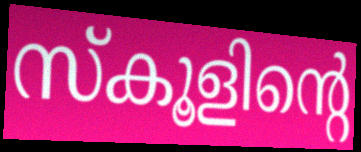
സ്കൂളിന്റെ